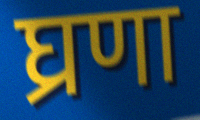
घ्रणा